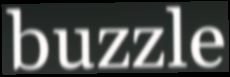
buzzle